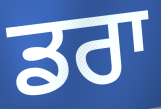
ਡਰਾ